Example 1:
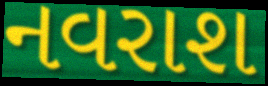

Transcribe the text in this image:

નવરાશ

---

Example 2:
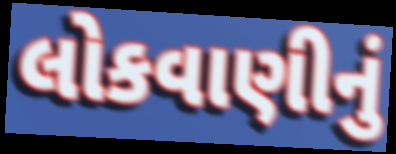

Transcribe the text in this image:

લોકવાણીનું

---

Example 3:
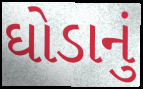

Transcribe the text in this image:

ઘોડાનું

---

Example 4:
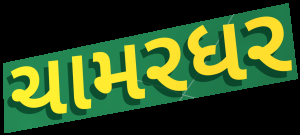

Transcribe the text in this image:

ચામરધર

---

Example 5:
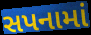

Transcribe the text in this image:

સપનામાં